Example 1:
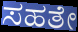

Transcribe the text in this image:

ಸಹತೇ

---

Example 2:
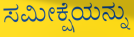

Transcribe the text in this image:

ಸಮೀಕ್ಷೆಯನ್ನು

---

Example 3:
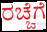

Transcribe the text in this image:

ರಚ್ಚೆಗೆ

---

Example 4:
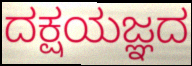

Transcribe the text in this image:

ದಕ್ಷಯಜ್ಞದ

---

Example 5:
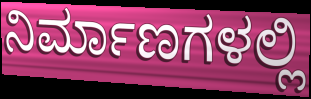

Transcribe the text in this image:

ನಿರ್ಮಾಣಗಳಲ್ಲಿ